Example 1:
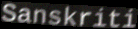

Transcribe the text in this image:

Sanskriti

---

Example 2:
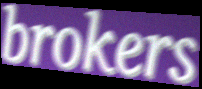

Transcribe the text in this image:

brokers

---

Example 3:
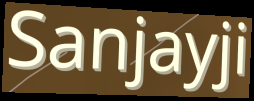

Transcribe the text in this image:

Sanjayji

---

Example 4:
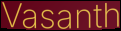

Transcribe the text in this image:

Vasanth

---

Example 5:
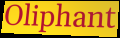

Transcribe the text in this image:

Oliphant